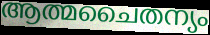
ആത്മചൈതന്യം